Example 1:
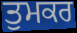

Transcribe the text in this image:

ਤੁਮਕਰ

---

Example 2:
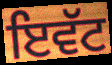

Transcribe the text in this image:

ਇਵੱਟ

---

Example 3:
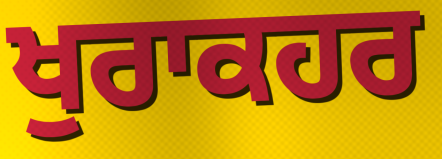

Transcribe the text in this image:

ਖੁਰਾਕਹਰ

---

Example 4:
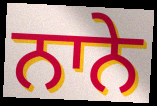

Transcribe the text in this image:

ਨਾਨੇ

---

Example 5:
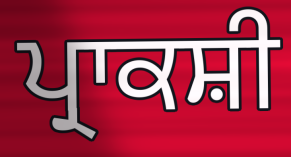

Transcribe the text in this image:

ਪ੍ਰਾਕਸ਼ੀ